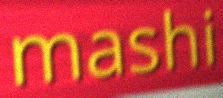
mashi